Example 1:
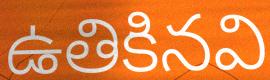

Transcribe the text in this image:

ఉతికినవి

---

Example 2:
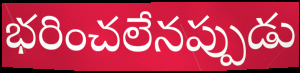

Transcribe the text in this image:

భరించలేనప్పుడు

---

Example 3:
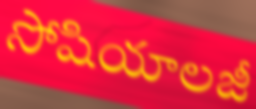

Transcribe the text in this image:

సోషియాలజీ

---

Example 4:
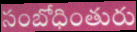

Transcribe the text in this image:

సంబోధింతురు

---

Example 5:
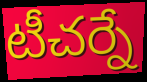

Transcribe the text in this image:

టీచర్నే